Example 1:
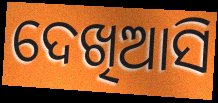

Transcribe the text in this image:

ଦେଖିଆସି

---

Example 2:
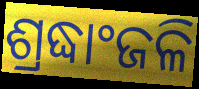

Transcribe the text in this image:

ଶ୍ରଦ୍ଧାଂଜଳି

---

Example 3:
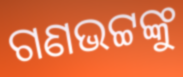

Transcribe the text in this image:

ଗଣଭଟ୍ଟଙ୍କୁ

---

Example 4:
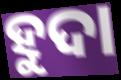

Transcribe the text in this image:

ହୁଦା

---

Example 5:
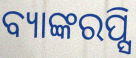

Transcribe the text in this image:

ବ୍ୟାଙ୍କରପ୍ସି